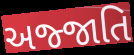
અજ્જાતિ